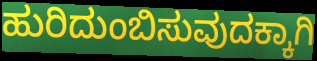
ಹುರಿದುಂಬಿಸುವುದಕ್ಕಾಗಿ